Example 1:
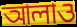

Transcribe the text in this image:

আলাও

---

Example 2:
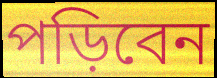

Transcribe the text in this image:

পড়িবেন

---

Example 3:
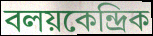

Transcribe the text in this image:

বলয়কেন্দ্রিক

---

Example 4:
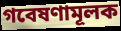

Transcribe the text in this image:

গবেষণামূলক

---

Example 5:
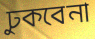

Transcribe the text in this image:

ঢুকবেনা